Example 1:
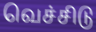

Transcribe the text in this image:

வெச்சிடு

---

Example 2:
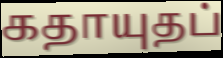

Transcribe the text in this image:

கதாயுதப்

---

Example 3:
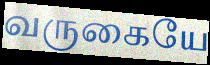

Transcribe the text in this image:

வருகையே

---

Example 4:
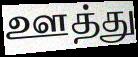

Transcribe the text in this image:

ஊத்து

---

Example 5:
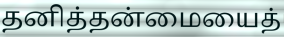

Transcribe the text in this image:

தனித்தன்மையைத்